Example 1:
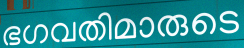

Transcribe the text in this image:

ഭഗവതിമാരുടെ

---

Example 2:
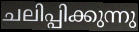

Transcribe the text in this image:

ചലിപ്പിക്കുന്നു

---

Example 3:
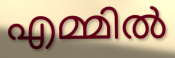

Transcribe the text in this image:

എമ്മിൽ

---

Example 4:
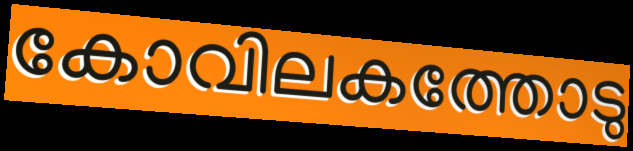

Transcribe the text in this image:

കോവിലകത്തോടു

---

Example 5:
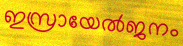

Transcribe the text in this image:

ഇസ്രായേൽജനം